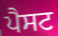
ਪੈਸਟ